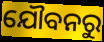
ଯୌବନରୁ